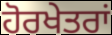
ਹੋਰਖੇਤਰਾਂ